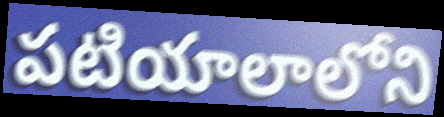
పటియాలాలోని